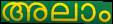
അലാം